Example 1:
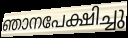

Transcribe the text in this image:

ഞാനപേക്ഷിച്ചു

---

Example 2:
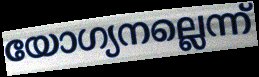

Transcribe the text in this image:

യോഗ്യനല്ലെന്ന്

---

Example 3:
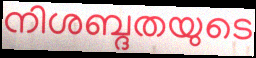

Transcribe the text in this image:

നിശബ്ദതയുടെ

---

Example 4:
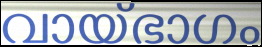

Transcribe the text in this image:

വായ്ഭാഗം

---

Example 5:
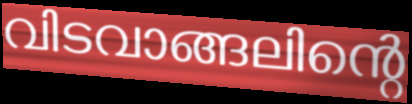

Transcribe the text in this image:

വിടവാങ്ങലിന്റെ